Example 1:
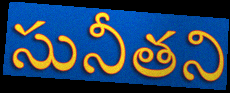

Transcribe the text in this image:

సునీతని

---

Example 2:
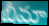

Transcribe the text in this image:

బీమా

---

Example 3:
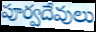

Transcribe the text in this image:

పూర్వదేవులు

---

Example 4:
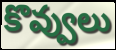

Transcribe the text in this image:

కొవ్వులు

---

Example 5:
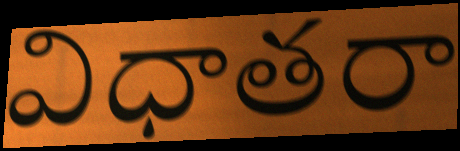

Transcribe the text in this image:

విధాతరా